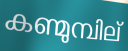
കണ്മുമ്പില്